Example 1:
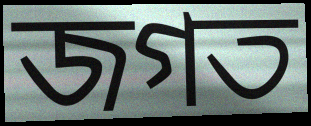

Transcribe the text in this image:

জগত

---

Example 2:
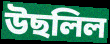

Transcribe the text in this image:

উছলিল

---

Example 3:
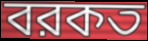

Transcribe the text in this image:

বরকত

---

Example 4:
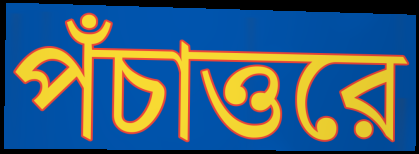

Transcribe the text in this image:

পঁচাত্তরে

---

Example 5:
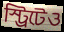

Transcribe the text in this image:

স্ট্রিটেও